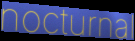
nocturnal